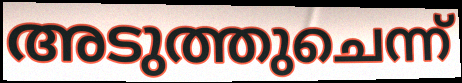
അടുത്തുചെന്ന്